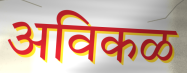
अविकळ